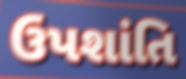
ઉપશાંતિ